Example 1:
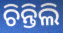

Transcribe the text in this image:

ଚିନ୍ତିଲି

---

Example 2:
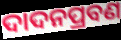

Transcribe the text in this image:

ଦାଦନପ୍ରବଣ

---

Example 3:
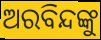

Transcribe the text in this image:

ଅରବିନ୍ଦଙ୍କୁ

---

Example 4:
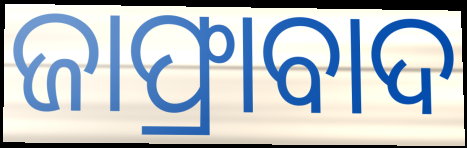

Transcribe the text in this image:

ଜାଫ୍ରାବାଦ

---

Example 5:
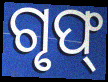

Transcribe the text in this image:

ଗୃଫ୍